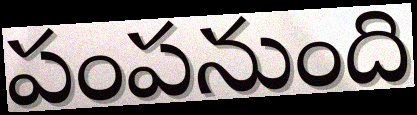
పంపనుంది